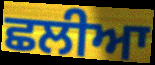
ਛਲੀਆ